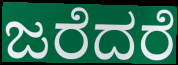
ಜರೆದರೆ